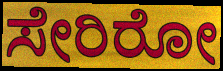
ಸೇರಿರೋ